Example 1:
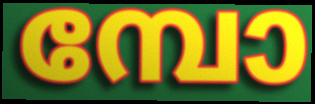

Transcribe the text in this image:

മ്പോ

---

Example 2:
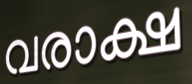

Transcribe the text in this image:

വരാക്ഷ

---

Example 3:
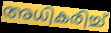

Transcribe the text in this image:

അധികരിച്ച്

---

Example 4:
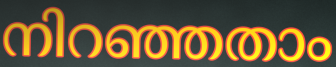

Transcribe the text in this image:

നിറഞ്ഞതാം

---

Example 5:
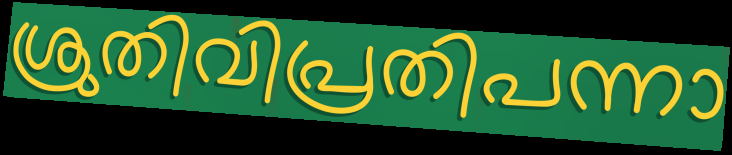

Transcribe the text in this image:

ശ്രുതിവിപ്രതിപന്നാ